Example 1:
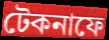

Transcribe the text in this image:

টেকনাফে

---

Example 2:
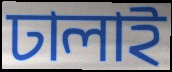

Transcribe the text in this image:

ঢালাই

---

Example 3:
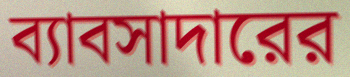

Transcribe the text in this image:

ব্যাবসাদারের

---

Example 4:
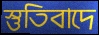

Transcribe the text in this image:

স্তুতিবাদে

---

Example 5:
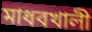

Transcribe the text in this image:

মাধবখালী